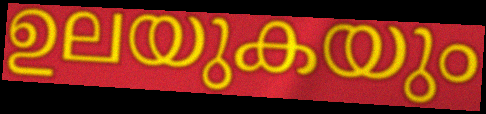
ഉലയുകയും